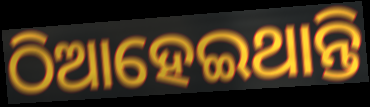
ଠିଆହେଇଥାନ୍ତି